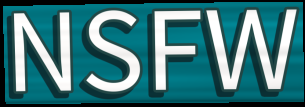
NSFW